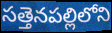
సత్తెనపల్లిలోని